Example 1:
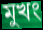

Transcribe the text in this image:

মুখং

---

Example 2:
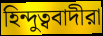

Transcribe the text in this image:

হিন্দুত্ববাদীরা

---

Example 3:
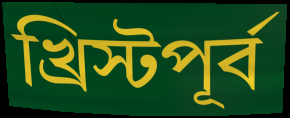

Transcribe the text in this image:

খ্রিস্টপূর্ব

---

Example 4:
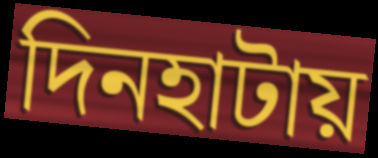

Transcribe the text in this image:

দিনহাটায়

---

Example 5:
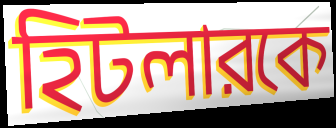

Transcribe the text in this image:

হিটলারকে